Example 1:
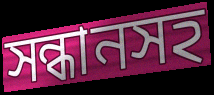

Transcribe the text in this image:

সন্ধানসহ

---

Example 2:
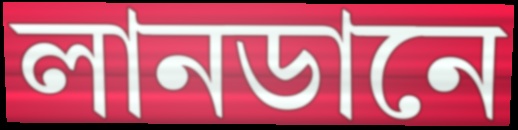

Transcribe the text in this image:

লানডানে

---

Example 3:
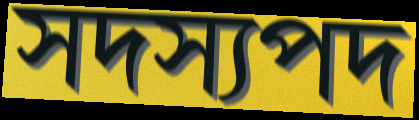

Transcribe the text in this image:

সদস্যপদ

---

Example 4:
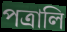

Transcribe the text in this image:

পত্রালি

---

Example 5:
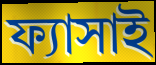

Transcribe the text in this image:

ফ্যাসাই